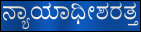
ನ್ಯಾಯಾಧೀಶರತ್ತ